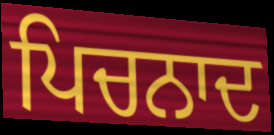
ਪਿਚਨਾਦ